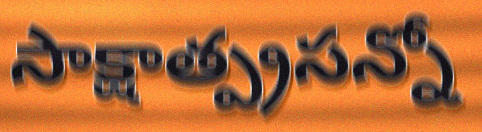
సాక్షాత్ప్రసన్నో